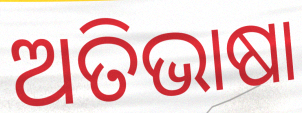
ଅତିଭାଷା